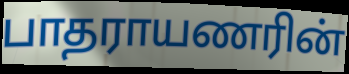
பாதராயணரின்